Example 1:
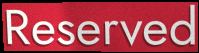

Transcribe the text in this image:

Reserved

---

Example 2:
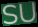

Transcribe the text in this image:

SU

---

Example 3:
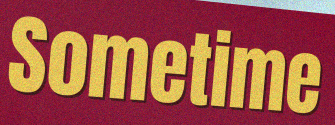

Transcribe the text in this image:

Sometime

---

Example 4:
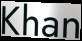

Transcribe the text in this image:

Khan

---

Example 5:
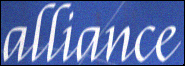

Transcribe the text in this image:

alliance